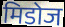
मिडोज